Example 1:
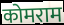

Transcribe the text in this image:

कोमराम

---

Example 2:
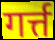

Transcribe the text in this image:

गर्त्त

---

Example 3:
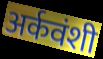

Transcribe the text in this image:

अर्कवंशी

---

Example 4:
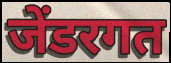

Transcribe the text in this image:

जेंडरगत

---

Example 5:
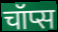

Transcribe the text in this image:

चॉप्स